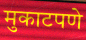
मुकाटपणे